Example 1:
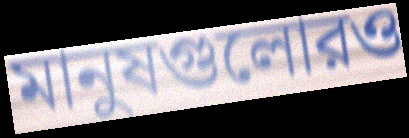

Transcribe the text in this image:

মানুষগুলোরও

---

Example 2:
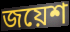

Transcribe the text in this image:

জয়েশ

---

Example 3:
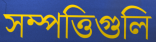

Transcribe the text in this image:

সম্পত্তিগুলি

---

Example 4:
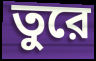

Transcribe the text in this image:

তুরে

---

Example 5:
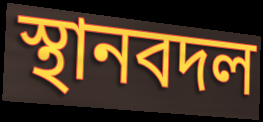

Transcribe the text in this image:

স্থানবদল